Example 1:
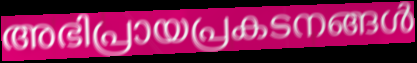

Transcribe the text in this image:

അഭിപ്രായപ്രകടനങ്ങൾ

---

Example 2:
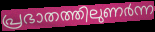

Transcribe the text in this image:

പ്രഭാതത്തിലുണർന്ന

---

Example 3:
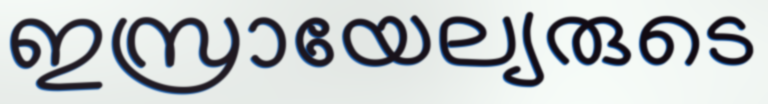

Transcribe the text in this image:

ഇസ്രായേല്യരുടെ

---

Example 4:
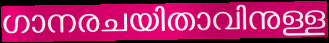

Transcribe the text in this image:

ഗാനരചയിതാവിനുള്ള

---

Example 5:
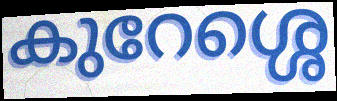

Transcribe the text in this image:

കുറേശ്ശെ